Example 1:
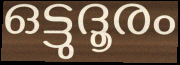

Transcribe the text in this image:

ഒട്ടുദൂരം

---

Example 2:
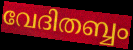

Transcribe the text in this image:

വേദിതബ്ബം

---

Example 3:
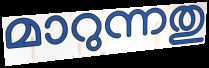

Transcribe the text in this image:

മാറുന്നതു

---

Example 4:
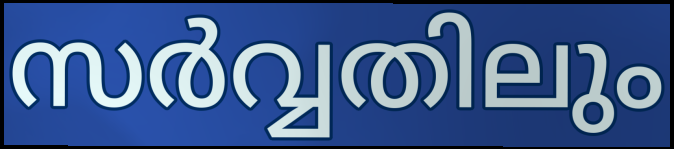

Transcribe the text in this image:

സർവ്വതിലും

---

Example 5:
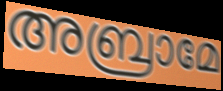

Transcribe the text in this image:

അബ്രാമേ